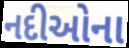
નદીઓના